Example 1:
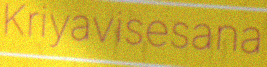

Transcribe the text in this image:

Kriyavisesana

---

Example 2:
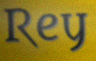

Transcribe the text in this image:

Rey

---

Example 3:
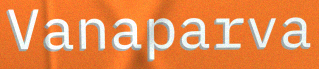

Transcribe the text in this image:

Vanaparva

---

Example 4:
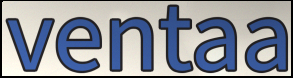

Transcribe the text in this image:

ventaa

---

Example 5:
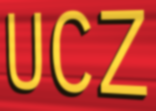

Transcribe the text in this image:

UCZ